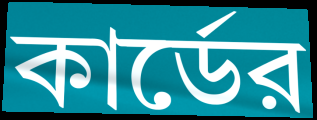
কার্ডের